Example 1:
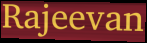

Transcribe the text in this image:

Rajeevan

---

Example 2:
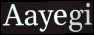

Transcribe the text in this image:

Aayegi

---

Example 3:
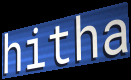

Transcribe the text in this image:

hitha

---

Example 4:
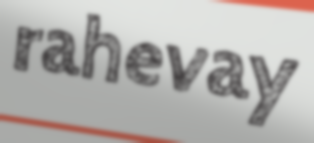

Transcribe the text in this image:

rahevay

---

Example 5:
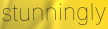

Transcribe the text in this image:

stunningly